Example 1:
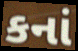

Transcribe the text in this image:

કનાં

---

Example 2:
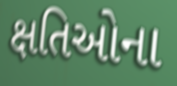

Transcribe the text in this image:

ક્ષતિઓના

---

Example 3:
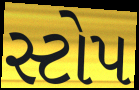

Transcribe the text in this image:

સ્ટોપ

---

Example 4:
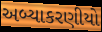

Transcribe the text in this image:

અબ્યાકરણીયો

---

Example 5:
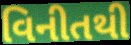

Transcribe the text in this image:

વિનીતથી